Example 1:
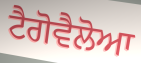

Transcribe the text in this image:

ਟੈਗੋਵੈਲੋਆ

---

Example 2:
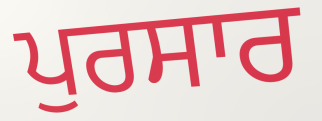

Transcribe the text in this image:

ਪੁਰਸਾਰ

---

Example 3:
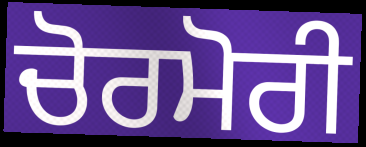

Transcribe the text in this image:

ਚੋਰਮੋਰੀ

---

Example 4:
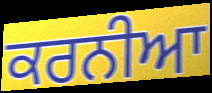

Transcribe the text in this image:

ਕਰਨੀਆ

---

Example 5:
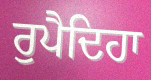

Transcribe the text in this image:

ਰੁਪੈਦਿਹਾ